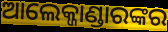
ଆଲେକ୍ଜାଣ୍ଡାରଙ୍କର